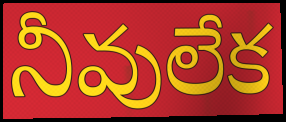
నీవులేక